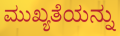
ಮುಖ್ಯತೆಯನ್ನು